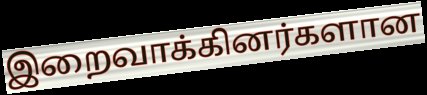
இறைவாக்கினர்களான